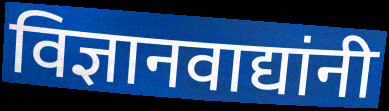
विज्ञानवाद्यांनी